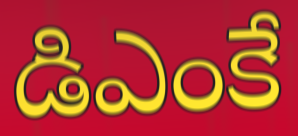
డిఎంకే